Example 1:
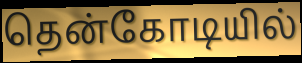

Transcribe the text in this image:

தென்கோடியில்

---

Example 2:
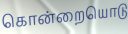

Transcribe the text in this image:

கொன்றையொடு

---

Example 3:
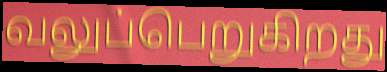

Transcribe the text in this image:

வலுப்பெறுகிறது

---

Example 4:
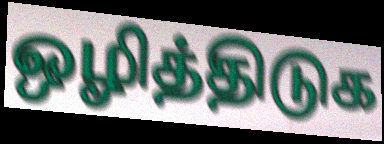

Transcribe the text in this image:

ஒழித்திடுக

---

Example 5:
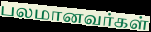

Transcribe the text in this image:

பலமானவர்கள்